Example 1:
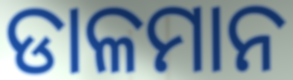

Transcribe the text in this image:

ଡାଳମାନ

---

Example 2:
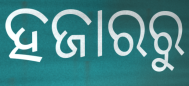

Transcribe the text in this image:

ହଜାରରୁ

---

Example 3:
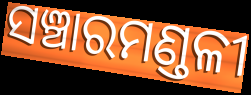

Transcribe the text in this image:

ସଞ୍ଚାରମଣ୍ଡଳୀ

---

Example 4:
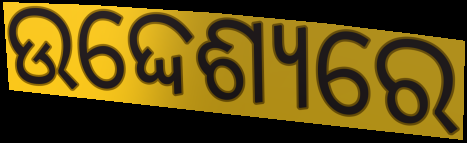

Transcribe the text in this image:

ଉଦ୍ଦେଶ୍ୟରେ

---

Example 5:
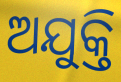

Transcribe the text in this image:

ଅଯୁକ୍ତି